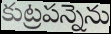
కుట్రపన్నెను